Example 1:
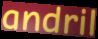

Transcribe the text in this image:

andril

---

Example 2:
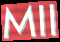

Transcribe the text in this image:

MII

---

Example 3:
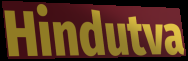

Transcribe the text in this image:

Hindutva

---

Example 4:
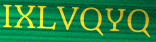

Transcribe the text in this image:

IXLVQYQ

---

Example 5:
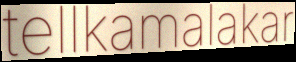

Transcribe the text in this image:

tellkamalakar